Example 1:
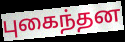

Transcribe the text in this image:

புகைந்தன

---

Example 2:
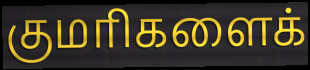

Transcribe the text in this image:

குமரிகளைக்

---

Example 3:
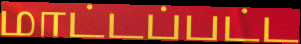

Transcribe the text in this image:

மாட்டப்பட்ட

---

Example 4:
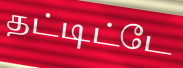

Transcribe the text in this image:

தட்டிட்டே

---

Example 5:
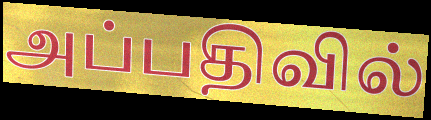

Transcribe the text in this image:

அப்பதிவில்